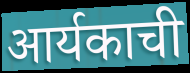
आर्यकाची